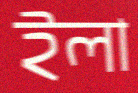
ইলা